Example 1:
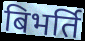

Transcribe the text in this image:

बिभर्ति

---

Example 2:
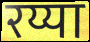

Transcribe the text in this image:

रय्या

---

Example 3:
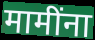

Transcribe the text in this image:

मामींना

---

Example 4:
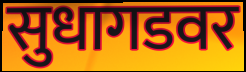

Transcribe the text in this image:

सुधागडवर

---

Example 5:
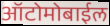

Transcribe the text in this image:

ऑटोमोबाईल